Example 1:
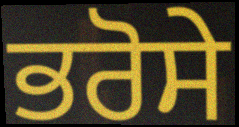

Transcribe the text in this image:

ਭਰੋਸੇ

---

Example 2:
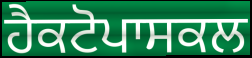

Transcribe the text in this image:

ਹੈਕਟੋਪਾਸਕਲ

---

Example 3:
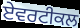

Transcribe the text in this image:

ਏਵਰਟੀਕਲ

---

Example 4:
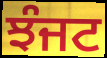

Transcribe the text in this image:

ਝੰਜਟ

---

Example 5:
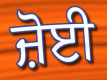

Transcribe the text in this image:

ਜ਼ੋਈ